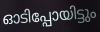
ഓടിപ്പോയിട്ടും